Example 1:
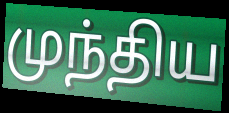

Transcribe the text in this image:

முந்திய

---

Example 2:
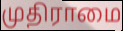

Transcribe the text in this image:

முதிராமை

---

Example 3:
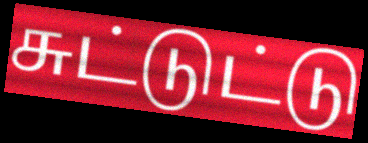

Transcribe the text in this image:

சுட்டுட்டு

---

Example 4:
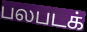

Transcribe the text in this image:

பலபடக்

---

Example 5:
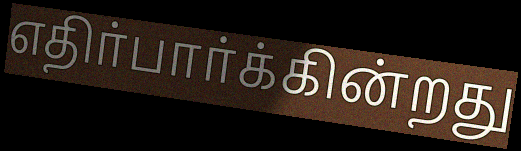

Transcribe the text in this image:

எதிர்பார்க்கின்றது